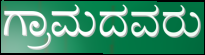
ಗ್ರಾಮದವರು